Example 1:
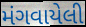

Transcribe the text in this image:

મંગવાયેલી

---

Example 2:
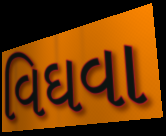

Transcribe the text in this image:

વિઘવા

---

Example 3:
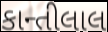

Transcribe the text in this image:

કાન્તીલાલ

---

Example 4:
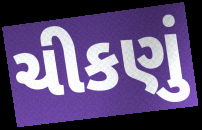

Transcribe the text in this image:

ચીકણું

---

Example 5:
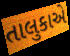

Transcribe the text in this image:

તાલુકાએ